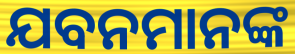
ଯବନମାନଙ୍କ